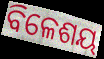
ବିଳେଶୟ